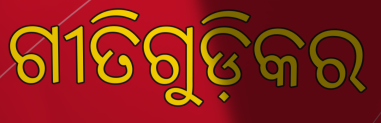
ଗୀତିଗୁଡ଼ିକର